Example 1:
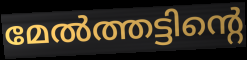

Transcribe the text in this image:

മേൽത്തട്ടിന്റെ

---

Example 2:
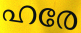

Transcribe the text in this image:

ഹരേ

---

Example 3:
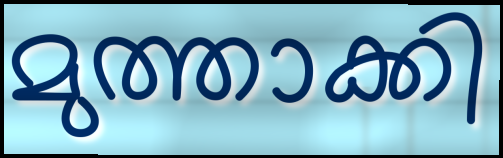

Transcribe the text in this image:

മുത്താക്കി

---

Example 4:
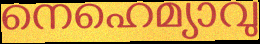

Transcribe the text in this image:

നെഹെമ്യാവു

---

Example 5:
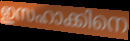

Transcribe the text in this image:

ഇസഹാക്കിനെ